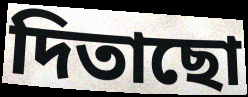
দিতাছো